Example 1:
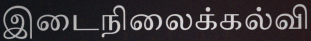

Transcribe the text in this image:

இடைநிலைக்கல்வி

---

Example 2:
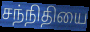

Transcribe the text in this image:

சந்நிதியை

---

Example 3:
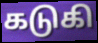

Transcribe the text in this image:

கடுகி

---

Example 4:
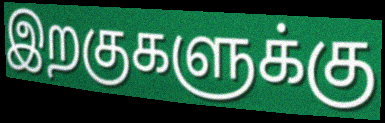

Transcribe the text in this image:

இறகுகளுக்கு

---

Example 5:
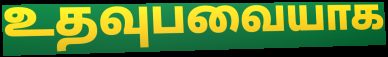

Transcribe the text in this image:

உதவுபவையாக